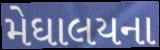
મેઘાલયના